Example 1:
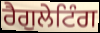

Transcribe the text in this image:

ਰੈਗੁਲੇਟਿੰਗ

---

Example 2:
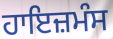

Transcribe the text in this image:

ਹਾਇਜ਼ਮੰਸ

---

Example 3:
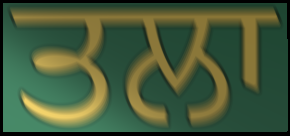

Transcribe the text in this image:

ਤਲਾ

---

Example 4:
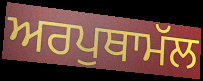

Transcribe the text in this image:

ਅਰਪੁਥਾਮੱਲ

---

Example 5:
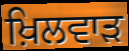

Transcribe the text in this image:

ਖ਼ਿਲਵਾੜ